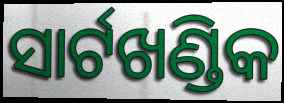
ସାର୍ଟଖଣ୍ଡିକ